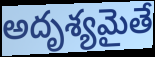
అదృశ్యమైతే